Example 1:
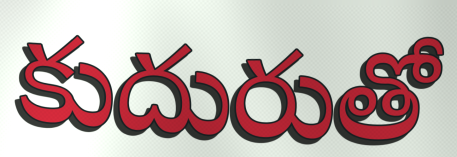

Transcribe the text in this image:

కుదురుతో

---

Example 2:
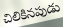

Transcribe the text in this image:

చిలికినపుడు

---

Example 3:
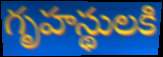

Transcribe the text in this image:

గృహస్థులకి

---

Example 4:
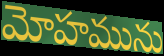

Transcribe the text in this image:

మోహమును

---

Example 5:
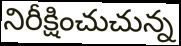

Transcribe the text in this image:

నిరీక్షించుచున్న